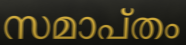
സമാപ്തം